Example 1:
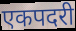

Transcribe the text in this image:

एकपदरी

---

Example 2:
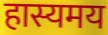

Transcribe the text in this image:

हास्यमय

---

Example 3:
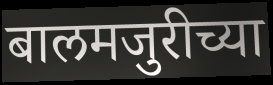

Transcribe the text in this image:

बालमजुरीच्या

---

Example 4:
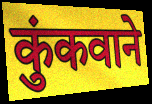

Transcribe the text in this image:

कुंकवाने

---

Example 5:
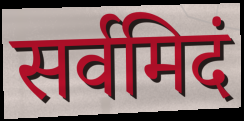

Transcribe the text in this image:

सर्वमिदं